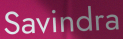
Savindra